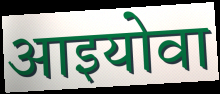
आइयोवा